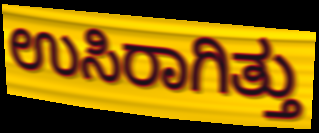
ಉಸಿರಾಗಿತ್ತು